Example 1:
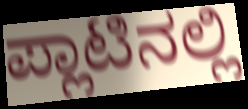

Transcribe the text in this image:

ಪ್ಲಾಟಿನಲ್ಲಿ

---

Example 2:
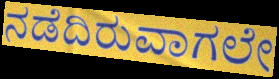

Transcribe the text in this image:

ನಡೆದಿರುವಾಗಲೇ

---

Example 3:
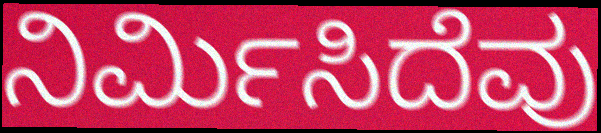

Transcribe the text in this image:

ನಿರ್ಮಿಸಿದೆವು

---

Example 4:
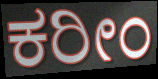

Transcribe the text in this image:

ಕರೀಂ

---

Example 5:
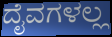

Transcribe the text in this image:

ದೈವಗಳಲ್ಲ